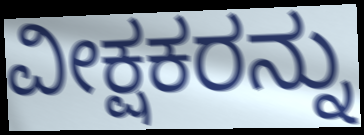
ವೀಕ್ಷಕರನ್ನು